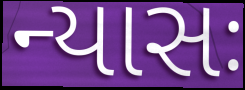
ન્યાસઃ